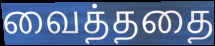
வைத்ததை